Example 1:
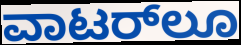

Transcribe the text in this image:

ವಾಟರ್‌ಲೂ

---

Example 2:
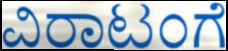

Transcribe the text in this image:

ವಿರಾಟಂಗೆ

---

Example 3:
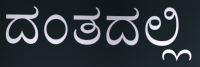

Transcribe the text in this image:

ದಂತದಲ್ಲಿ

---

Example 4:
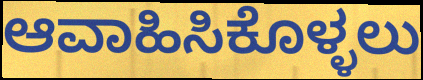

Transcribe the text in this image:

ಆವಾಹಿಸಿಕೊಳ್ಳಲು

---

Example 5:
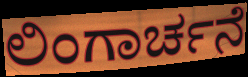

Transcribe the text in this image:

ಲಿಂಗಾರ್ಚನೆ